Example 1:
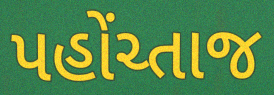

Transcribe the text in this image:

પહોંચ્તાજ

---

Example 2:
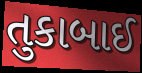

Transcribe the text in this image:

તુકાબાઈ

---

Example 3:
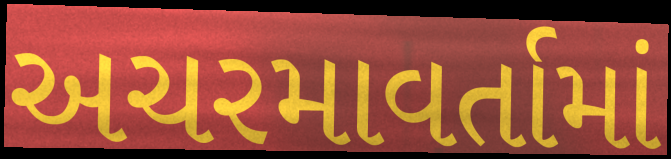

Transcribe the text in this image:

અચરમાવર્તામાં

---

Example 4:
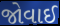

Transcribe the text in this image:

જોવાઈ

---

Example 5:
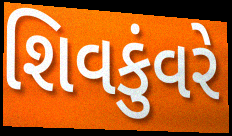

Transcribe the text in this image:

શિવકુંવરે